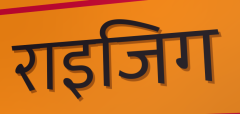
राइजिग